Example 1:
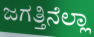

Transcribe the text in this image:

ಜಗತ್ತಿನೆಲ್ಲಾ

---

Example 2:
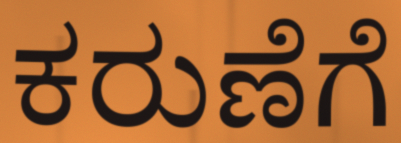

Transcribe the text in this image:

ಕರುಣೆಗೆ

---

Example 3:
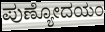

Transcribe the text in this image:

ಪುಣ್ಯೋದಯಂ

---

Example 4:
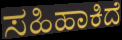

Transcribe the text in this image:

ಸಹಿಹಾಕಿದೆ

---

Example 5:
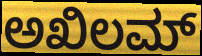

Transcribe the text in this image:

ಅಖಿಲಮ್